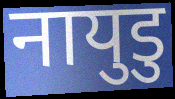
नायुडु